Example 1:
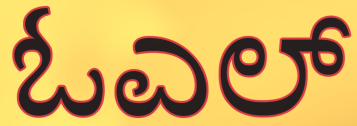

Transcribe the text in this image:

ಓಎಲ್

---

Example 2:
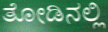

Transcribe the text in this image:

ತೋಡಿನಲ್ಲಿ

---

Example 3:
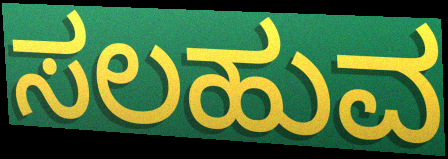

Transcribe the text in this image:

ಸಲಹುವ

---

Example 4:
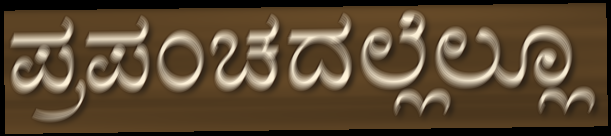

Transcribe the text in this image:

ಪ್ರಪಂಚದಲ್ಲೆಲ್ಲೂ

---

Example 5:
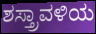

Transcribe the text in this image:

ಶಸ್ತ್ರಾವಳಿಯ